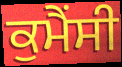
ਕੁਮੈਂਸੀ